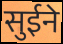
सुईने